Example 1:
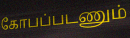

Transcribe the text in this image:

கோபப்படணும்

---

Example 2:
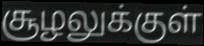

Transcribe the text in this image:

சூழலுக்குள்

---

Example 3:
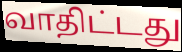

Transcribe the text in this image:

வாதிட்டது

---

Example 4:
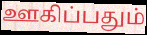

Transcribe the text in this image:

ஊகிப்பதும்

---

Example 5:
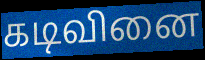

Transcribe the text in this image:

கடிவினை